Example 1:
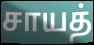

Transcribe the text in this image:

சாயத்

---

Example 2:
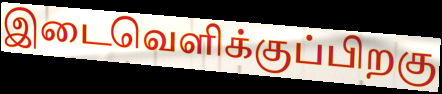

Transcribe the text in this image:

இடைவெளிக்குப்பிறகு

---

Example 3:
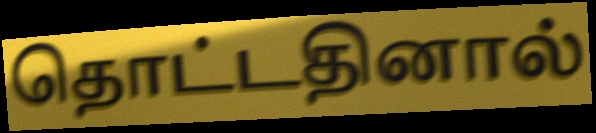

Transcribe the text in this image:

தொட்டதினால்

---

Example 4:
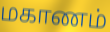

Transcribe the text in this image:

மகாணம்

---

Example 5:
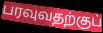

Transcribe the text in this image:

பரவுவதற்குப்